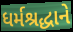
ધર્મશ્રદ્ધાને